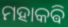
ମହାକଵି